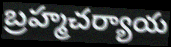
బ్రహ్మచర్యాయ